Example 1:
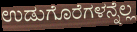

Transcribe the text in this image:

ಉಡುಗೊರೆಗಳನ್ನೆಲ್ಲ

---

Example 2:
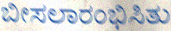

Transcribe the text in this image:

ಬೀಸಲಾರಂಭಿಸಿತು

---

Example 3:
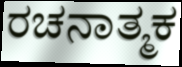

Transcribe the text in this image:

ರಚನಾತ್ಮಕ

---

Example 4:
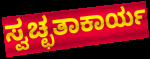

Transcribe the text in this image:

ಸ್ವಚ್ಛತಾಕಾರ್ಯ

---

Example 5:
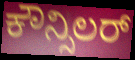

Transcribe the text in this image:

ಕೌನ್ಸಿಲರ್